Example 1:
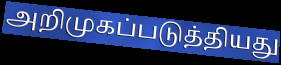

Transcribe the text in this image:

அறிமுகப்படுத்தியது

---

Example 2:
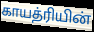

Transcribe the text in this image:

காயத்ரியின்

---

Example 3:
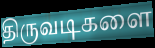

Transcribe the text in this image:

திருவடிகளை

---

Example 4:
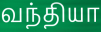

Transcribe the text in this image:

வந்தியா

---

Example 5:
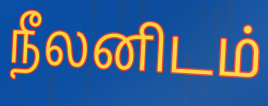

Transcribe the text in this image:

நீலனிடம்